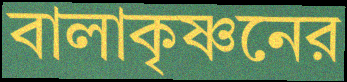
বালাকৃষ্ণনের